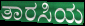
ತಾರಸಿಯ